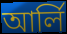
আৰ্লি